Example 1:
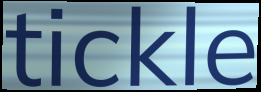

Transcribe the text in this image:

tickle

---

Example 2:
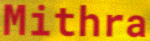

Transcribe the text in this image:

Mithra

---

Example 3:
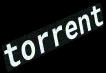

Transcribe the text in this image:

torrent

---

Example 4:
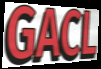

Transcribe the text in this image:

GACL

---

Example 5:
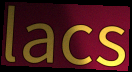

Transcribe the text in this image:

lacs